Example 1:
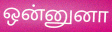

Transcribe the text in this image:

ஒன்னுனா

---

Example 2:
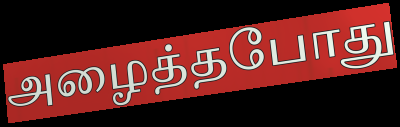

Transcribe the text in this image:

அழைத்தபோது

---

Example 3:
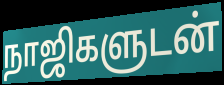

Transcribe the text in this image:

நாஜிகளுடன்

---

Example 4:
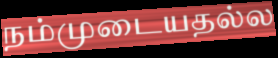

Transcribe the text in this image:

நம்முடையதல்ல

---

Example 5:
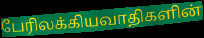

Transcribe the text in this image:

பேரிலக்கியவாதிகளின்